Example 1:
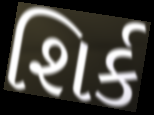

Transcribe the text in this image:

શિર્ક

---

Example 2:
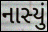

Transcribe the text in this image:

નાસ્યું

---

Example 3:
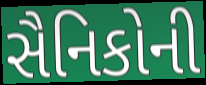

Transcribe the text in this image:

સૈનિકોની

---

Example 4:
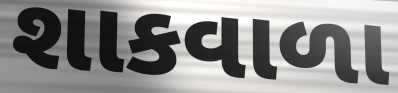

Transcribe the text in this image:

શાકવાળા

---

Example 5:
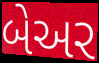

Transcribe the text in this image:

બેઅર